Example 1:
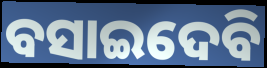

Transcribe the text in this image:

ବସାଇଦେବି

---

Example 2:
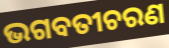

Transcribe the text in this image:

ଭଗବତୀଚରଣ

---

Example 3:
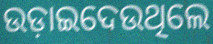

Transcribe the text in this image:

ଉଡ଼ାଇଦେଉଥିଲେ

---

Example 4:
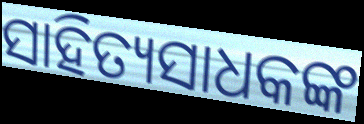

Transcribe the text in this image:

ସାହିତ୍ୟସାଧକଙ୍କ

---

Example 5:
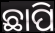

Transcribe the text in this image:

ଛାପି